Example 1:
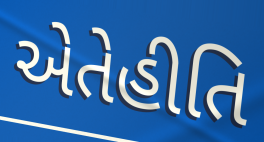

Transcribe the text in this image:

એતેહીતિ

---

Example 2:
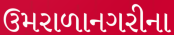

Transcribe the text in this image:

ઉમરાળાનગરીના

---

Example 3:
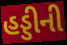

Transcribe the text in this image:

હડ્ડીની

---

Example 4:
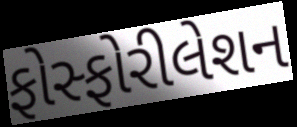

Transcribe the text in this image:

ફોસ્ફોરીલેશન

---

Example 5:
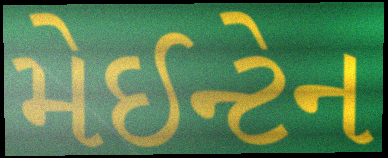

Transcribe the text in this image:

મેઈન્ટેન